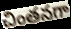
చింతనగా